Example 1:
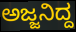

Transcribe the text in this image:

ಅಜ್ಜನಿದ್ದ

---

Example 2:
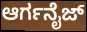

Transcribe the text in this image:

ಆರ್ಗನೈಜ್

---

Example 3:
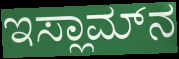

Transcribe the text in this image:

ಇಸ್ಲಾಮ್‌ನ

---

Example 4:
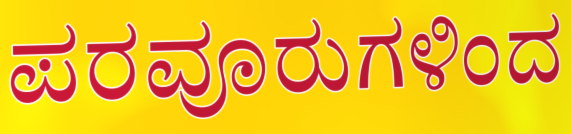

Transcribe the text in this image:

ಪರವೂರುಗಳಿಂದ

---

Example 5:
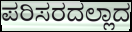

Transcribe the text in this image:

ಪರಿಸರದಲ್ಲಾದ